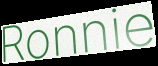
Ronnie